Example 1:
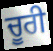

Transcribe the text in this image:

ਚੂਰੀ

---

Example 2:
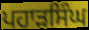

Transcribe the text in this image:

ਪਹਾੜਸਿੰਘ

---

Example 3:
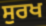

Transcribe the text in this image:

ਸੁਰਖ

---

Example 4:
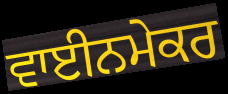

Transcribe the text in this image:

ਵਾਈਨਮੇਕਰ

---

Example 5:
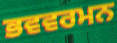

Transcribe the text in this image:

ਭਵਵਰਮਨ